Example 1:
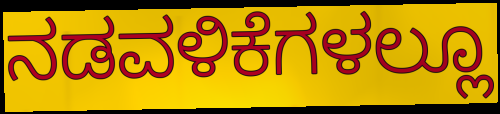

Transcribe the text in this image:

ನಡವಳಿಕೆಗಳಲ್ಲೂ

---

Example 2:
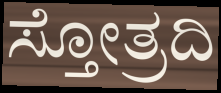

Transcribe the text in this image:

ಸ್ತೋತ್ರದಿ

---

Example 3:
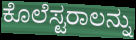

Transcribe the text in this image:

ಕೊಲೆಸ್ಟರಾಲನ್ನು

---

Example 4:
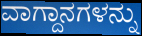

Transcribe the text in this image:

ವಾಗ್ದಾನಗಳನ್ನು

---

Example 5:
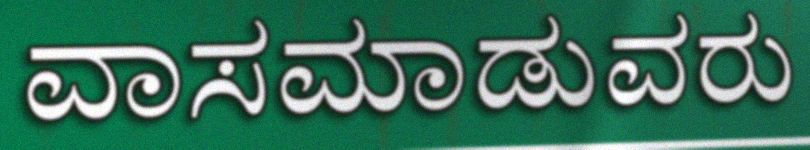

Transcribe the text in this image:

ವಾಸಮಾಡುವರು